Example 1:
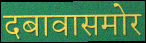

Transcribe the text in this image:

दबावासमोर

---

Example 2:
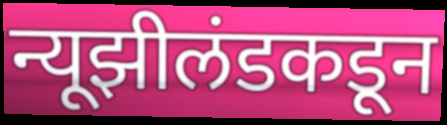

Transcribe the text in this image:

न्यूझीलंडकडून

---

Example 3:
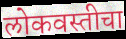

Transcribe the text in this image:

लोकवस्तीचा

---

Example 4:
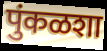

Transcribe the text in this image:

पुंकळशा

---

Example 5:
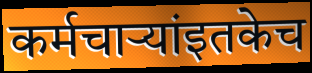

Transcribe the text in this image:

कर्मचाऱ्यांइतकेच